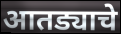
आतड्याचे